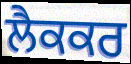
ਲੈਕਕਰ